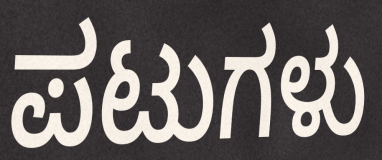
ಪಟುಗಳು